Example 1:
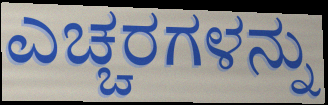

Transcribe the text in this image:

ಎಚ್ಚರಗಳನ್ನು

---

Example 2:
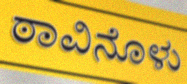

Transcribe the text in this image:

ಠಾವಿನೊಳು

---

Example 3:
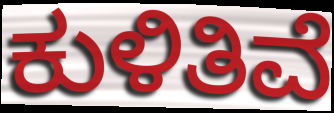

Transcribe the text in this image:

ಕುಳಿತಿವೆ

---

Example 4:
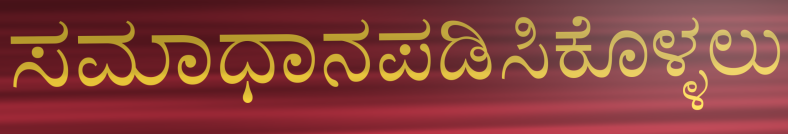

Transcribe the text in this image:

ಸಮಾಧಾನಪಡಿಸಿಕೊಳ್ಳಲು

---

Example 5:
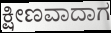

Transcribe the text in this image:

ಕ್ಷೀಣವಾದಾಗ